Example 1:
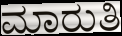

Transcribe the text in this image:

ಮಾರುತಿ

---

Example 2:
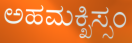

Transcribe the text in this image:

ಅಹಮಕ್ಖಿಸ್ಸಂ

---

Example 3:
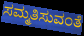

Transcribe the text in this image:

ಸಮ್ಮತಿಸುವಂತೆ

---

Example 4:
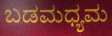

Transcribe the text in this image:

ಬಡಮಧ್ಯಮ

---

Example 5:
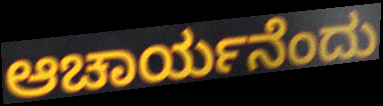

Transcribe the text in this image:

ಆಚಾರ್ಯನೆಂದು